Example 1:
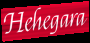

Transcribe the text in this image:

Hehegara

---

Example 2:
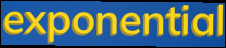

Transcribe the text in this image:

exponential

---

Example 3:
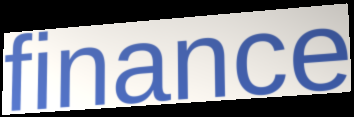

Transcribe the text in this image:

finance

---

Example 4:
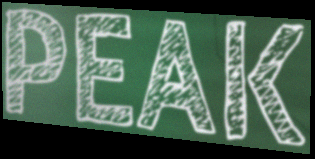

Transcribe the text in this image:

PEAK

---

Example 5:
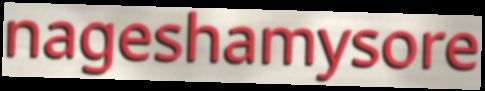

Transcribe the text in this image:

nageshamysore